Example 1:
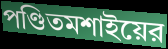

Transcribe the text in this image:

পণ্ডিতমশাইয়ের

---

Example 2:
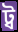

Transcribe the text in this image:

ট্ব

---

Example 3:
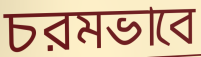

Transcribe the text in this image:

চরমভাবে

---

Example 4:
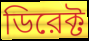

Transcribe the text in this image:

ডিরেক্ট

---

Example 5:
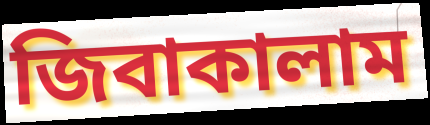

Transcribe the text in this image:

জিবাকালাম